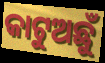
କାଟୁଅଛୁଁ